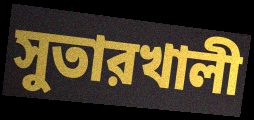
সুতারখালী